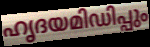
ഹൃദയമിഡിപ്പും